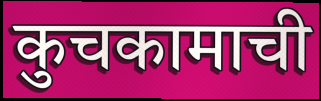
कुचकामाची